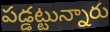
పడ్డట్టున్నారు